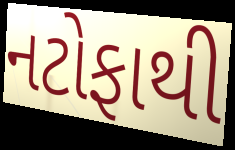
નટોફાથી